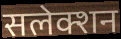
सलेक्शन